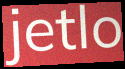
jetlo